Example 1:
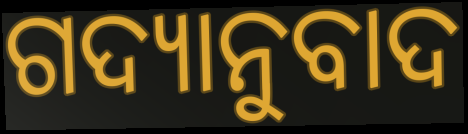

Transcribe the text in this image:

ଗଦ୍ୟାନୁବାଦ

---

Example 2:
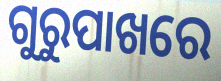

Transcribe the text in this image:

ଗୁରୁପାଖରେ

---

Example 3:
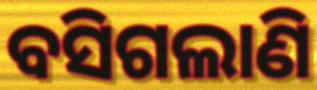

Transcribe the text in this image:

ବସିଗଲାଣି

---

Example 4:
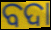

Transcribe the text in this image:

ବଦା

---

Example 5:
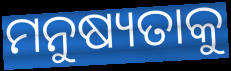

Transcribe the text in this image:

ମନୁଷ୍ୟତାକୁ